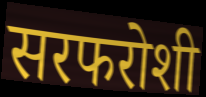
सरफरोशी